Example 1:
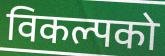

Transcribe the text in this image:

विकल्पको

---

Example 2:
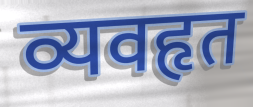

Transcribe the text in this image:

व्यवहृत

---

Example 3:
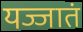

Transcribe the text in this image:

यज्जातं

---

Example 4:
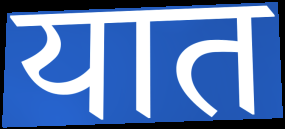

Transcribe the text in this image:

यात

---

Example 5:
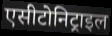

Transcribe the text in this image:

एसीटोनिट्राइल